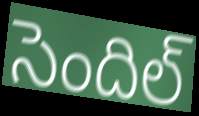
సెందిల్